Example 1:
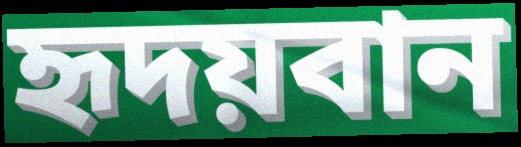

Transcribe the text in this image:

হৃদয়বান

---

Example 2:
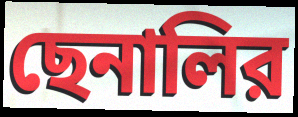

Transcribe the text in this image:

ছেনালির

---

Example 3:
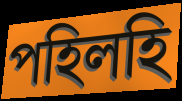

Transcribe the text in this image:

পহিলহি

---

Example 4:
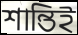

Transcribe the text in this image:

শান্তিই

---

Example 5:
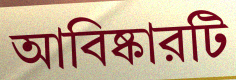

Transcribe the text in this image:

আবিষ্কারটি